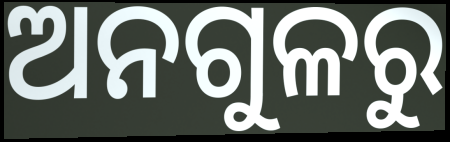
ଅନଗୁଳରୁ